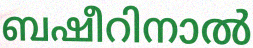
ബഷീറിനാൽ